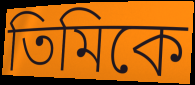
তিমিকে